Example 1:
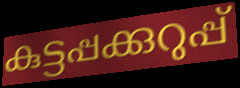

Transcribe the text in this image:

കുട്ടപ്പക്കുറുപ്പ്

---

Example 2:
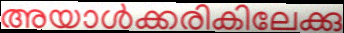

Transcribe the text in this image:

അയാൾക്കരികിലേക്കു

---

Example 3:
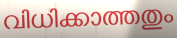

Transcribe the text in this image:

വിധിക്കാത്തതും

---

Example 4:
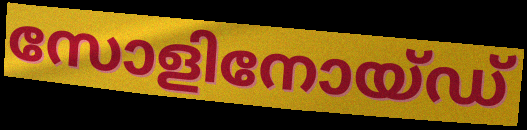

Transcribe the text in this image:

സോളിനോയ്ഡ്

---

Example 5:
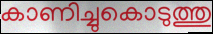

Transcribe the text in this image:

കാണിച്ചുകൊടുത്തു